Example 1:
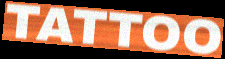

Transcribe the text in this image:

TATTOO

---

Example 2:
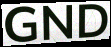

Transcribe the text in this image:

GND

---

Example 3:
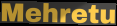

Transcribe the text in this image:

Mehretu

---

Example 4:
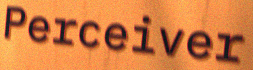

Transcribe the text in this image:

Perceiver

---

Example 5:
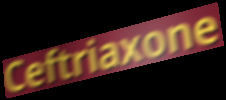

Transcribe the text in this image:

Ceftriaxone